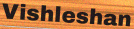
Vishleshan